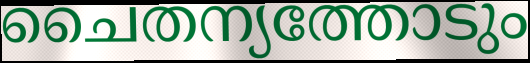
ചൈതന്യത്തോടും